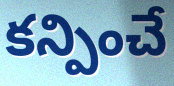
కన్పించే